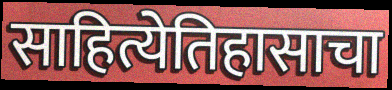
साहित्येतिहासाचा